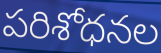
పరిశోధనల